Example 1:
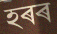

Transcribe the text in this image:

হৰৰ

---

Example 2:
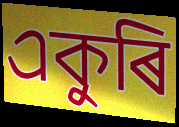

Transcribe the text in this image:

একুৰি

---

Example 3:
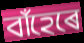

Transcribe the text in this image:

বাঁহেৰে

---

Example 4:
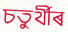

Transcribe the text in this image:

চতুৰ্থীৰ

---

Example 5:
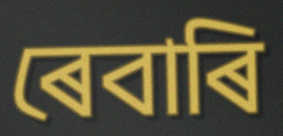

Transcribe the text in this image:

ৰেবাৰি